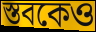
স্তবকেও